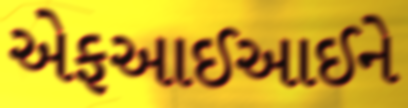
એફઆઈઆઈને